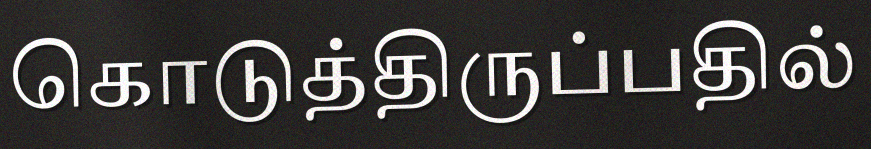
கொடுத்திருப்பதில்